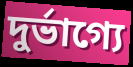
দুর্ভাগ্যে